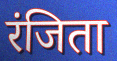
रंजिता